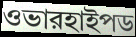
ওভারহাইপড